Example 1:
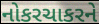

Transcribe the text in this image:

નોકરચાકરને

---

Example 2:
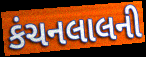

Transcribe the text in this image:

કંચનલાલની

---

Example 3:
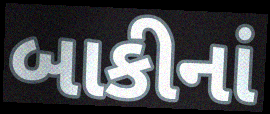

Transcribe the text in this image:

બાકીનાં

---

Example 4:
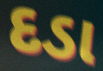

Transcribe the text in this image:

દડા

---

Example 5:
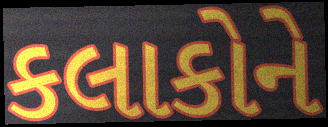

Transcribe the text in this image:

કલાકોને